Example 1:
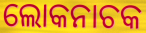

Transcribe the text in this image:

ଲୋକନାଚକ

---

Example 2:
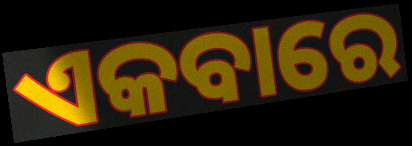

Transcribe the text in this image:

ଏକବାରେ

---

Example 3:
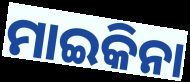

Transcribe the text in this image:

ମାଇକିନା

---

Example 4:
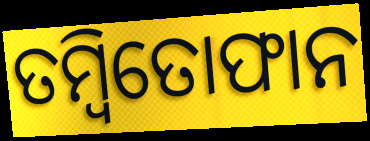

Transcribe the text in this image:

ତମ୍ବିତୋଫାନ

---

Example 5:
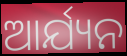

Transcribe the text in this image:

ଆର୍ଯ୍ୟନ